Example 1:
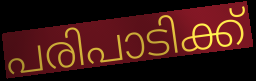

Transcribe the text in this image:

പരിപാടിക്ക്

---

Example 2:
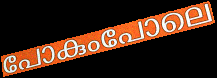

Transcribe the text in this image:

പോകുംപോലെ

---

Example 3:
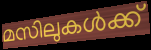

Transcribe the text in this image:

മസിലുകൾക്ക്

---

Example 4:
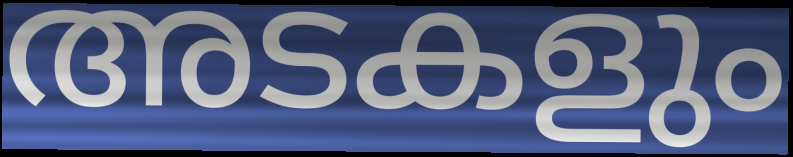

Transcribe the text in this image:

അടകളും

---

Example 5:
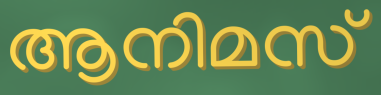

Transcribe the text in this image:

ആനിമസ്